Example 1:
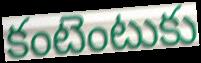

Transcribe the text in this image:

కంటెంటుకు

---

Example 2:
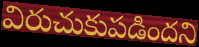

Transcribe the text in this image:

విరుచుకుపడిందని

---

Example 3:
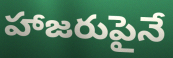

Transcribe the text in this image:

హాజరుపైనే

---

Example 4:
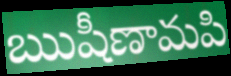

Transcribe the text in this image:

ఋషీణామపి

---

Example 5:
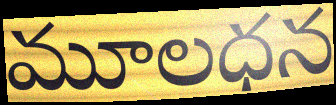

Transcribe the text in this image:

మూలధన